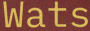
Wats